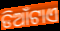
ଡିଆଁଟାଏ